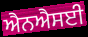
ਐਨਐਸਈ